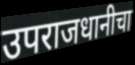
उपराजधानीचा